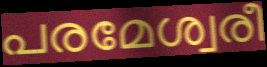
പരമേശ്വരീ